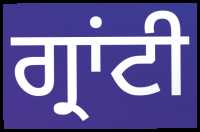
ਗ੍ਰਾਂਟੀ